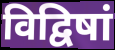
विद्विषां